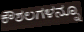
ಕೌಶಲಗಳನ್ನೂ